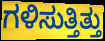
ಗಳಿಸುತ್ತಿತ್ತು